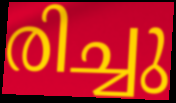
രിച്ചു